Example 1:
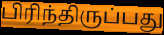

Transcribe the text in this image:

பிரிந்திருப்பது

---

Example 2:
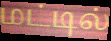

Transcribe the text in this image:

மட்டில்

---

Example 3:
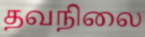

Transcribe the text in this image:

தவநிலை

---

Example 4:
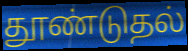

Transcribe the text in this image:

தூண்டுதல்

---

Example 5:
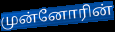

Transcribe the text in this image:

முன்னோரின்